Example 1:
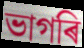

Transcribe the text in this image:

ভাগৰি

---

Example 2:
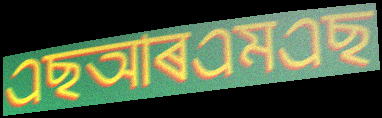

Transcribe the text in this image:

এছআৰএমএছ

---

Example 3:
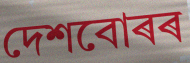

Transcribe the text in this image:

দেশবোৰৰ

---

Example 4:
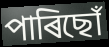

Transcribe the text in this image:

পাৰিছোঁ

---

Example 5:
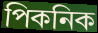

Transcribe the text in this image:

পিকনিক